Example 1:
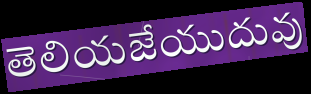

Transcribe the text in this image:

తెలియజేయుదువు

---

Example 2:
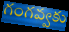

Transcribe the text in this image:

గంగవ్వకు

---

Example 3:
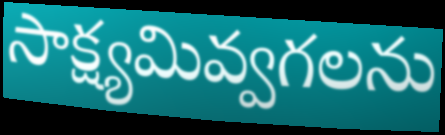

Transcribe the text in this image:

సాక్ష్యమివ్వగలను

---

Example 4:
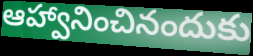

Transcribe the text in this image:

ఆహ్వానించినందుకు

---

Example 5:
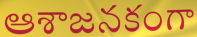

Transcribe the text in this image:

ఆశాజనకంగా